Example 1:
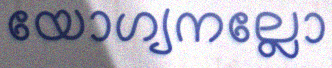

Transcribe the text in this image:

യോഗ്യനല്ലോ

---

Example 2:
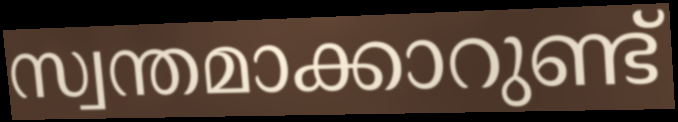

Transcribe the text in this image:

സ്വന്തമാക്കാറുണ്ട്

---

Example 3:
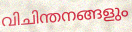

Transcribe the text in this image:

വിചിന്തനങ്ങളും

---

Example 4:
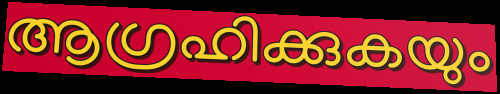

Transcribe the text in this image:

ആഗ്രഹിക്കുകയും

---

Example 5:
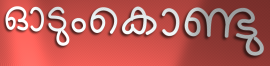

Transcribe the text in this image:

ഓടുംകൊണ്ടു